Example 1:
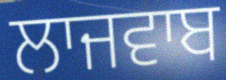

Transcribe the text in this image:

ਲਾਜਵਾਬ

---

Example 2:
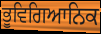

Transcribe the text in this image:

ਭੂਵਿਗਿਆਨਿਕ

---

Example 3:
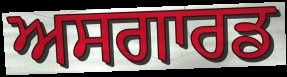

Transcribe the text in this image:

ਅਸਗਾਰਡ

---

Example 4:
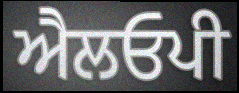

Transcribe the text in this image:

ਐਲਓਪੀ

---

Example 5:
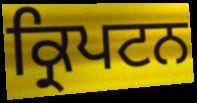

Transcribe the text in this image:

ਕ੍ਰਿਪਟਨ